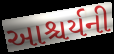
આશ્ચર્યની